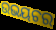
ଉଭୟଚର